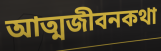
আত্মজীবনকথা